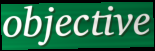
objective